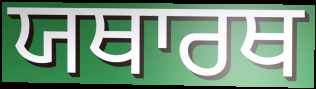
ਯਥਾਰਥ